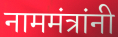
नाममंत्रांनी